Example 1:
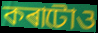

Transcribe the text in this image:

কৰাটোও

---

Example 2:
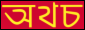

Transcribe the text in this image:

অথচ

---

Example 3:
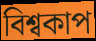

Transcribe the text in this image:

বিশ্বকাপ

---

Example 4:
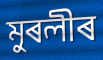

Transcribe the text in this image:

মুৰলীৰ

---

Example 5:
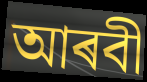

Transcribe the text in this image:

আৰবী